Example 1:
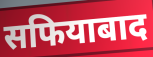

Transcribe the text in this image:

सफियाबाद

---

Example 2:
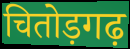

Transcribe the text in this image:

चितोड़गढ़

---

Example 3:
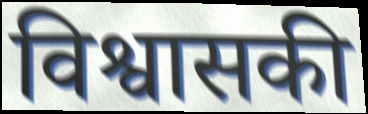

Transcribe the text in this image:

विश्वासकी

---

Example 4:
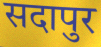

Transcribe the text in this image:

सदापुर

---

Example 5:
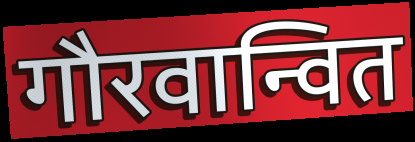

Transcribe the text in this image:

गौरवान्वित